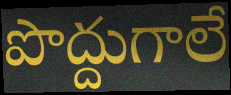
పొద్దుగాలే